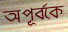
অপূর্বকে